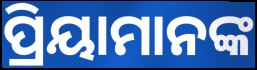
ପ୍ରିୟାମାନଙ୍କ